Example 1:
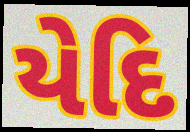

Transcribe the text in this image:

યેદિ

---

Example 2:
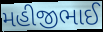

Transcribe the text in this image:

મહીજીભાઈ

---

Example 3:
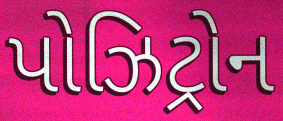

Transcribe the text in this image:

પોઝિટ્રોન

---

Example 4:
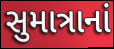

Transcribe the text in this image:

સુમાત્રાનાં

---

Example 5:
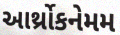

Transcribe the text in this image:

આર્થ્રોકનેમમ